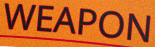
WEAPON